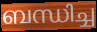
ബന്ധിച്ച